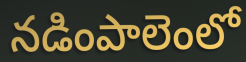
నడింపాలెంలో